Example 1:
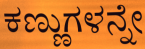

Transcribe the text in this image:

ಕಣ್ಣುಗಳನ್ನೇ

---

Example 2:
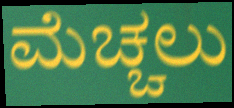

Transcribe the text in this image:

ಮೆಚ್ಚಲು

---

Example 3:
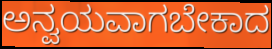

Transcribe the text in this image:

ಅನ್ವಯವಾಗಬೇಕಾದ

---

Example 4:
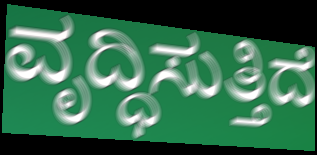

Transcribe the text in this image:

ವೃದ್ಧಿಸುತ್ತಿದೆ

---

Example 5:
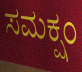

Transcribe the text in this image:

ಸಮಕ್ಷಂ